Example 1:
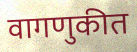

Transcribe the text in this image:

वागणुकीत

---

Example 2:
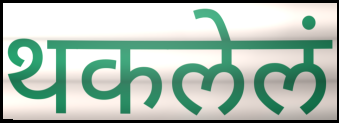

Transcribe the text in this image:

थकलेलं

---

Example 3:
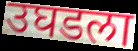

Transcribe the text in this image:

उघडला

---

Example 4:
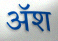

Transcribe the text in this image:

ॲश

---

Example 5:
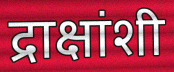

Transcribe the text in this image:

द्राक्षांशी